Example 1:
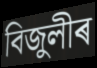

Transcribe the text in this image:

বিজুলীৰ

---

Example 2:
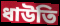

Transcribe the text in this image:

ধাউতি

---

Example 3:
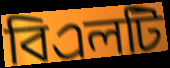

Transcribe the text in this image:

বিএলটি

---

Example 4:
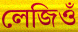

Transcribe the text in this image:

লেজিওঁ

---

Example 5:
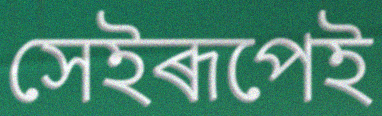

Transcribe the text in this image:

সেইৰূপেই